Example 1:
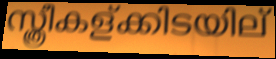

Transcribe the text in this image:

സ്ത്രീകള്ക്കിടയില്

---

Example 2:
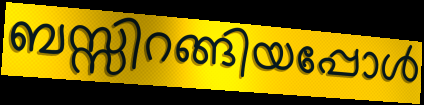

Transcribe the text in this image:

ബസ്സിറങ്ങിയപ്പോൾ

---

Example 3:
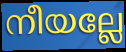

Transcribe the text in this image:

നീയല്ലേ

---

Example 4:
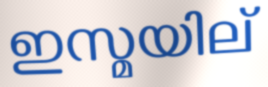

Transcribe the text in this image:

ഇസ്മയില്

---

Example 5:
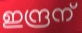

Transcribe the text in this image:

ഇന്ദ്രന്